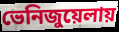
ভেনিজুয়েলায়